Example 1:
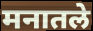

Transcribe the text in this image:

मनातले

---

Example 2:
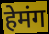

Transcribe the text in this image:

हेमंग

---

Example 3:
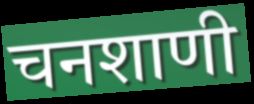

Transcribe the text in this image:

चनशाणी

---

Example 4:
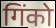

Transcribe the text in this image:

गिंको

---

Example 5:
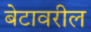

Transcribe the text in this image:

बेटावरील